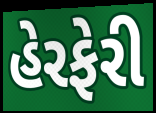
હેરફેરી